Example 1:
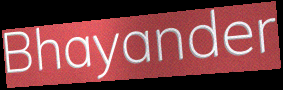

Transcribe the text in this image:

Bhayander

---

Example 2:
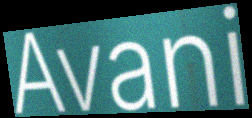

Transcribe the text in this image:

Avani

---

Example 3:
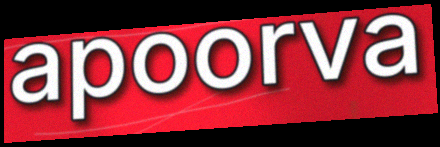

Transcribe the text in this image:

apoorva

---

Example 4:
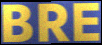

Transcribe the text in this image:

BRE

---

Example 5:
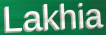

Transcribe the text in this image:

Lakhia